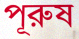
পূরুষ